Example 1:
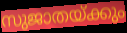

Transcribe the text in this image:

സുജാതയ്ക്കും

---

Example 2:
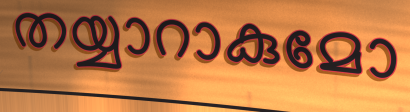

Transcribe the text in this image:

തയ്യാറാകുമോ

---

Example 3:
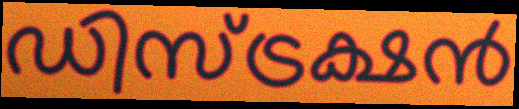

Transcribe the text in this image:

ഡിസ്ട്രക്ഷൻ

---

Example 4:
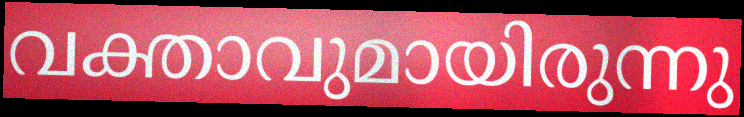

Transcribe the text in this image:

വക്താവുമായിരുന്നു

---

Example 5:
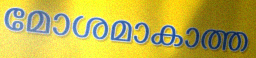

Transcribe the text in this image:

മോശമാകാത്ത